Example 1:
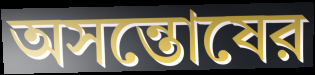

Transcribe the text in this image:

অসন্তোষের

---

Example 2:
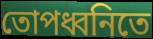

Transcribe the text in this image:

তোপধ্বনিতে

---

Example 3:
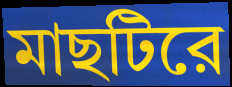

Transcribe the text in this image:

মাছটিরে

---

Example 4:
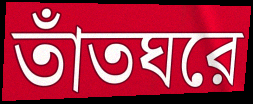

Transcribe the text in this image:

তাঁতঘরে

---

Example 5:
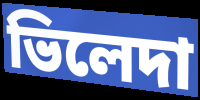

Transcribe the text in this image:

ভিলেদা